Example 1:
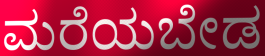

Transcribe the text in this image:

ಮರೆಯಬೇಡ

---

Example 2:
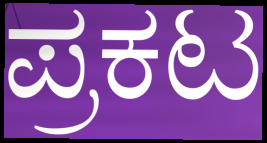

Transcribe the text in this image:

ಪ್ರಕಟ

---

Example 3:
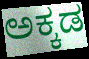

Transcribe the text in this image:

ಅಕ್ಕಡ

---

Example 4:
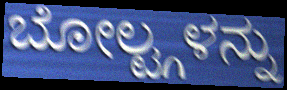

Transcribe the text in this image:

ಬೋಲ್ಟ್ಗಳನ್ನು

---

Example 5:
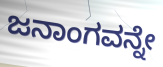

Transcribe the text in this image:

ಜನಾಂಗವನ್ನೇ